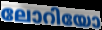
ലോറിയോ